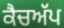
ਕੈਚਅੱਪ